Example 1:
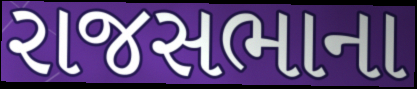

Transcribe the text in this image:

રાજસભાના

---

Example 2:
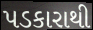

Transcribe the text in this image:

પડકારાથી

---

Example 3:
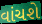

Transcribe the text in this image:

વાંચશે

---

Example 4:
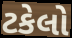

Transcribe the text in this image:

ટકેલો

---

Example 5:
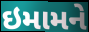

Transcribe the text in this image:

ઇમામને